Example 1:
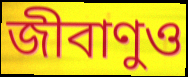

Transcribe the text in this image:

জীবাণুও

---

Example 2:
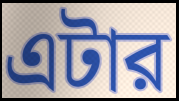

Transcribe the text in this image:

এটার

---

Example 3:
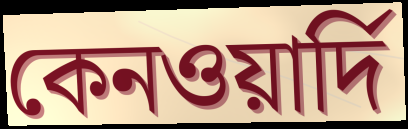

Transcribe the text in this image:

কেনওয়ার্দি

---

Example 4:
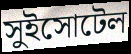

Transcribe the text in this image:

সুইসোটেল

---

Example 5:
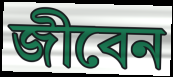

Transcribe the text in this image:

জীবেন